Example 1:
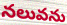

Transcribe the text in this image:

నలువను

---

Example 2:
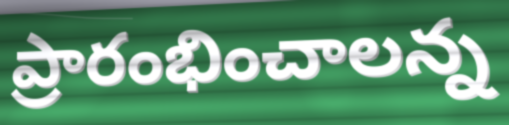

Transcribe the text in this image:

ప్రారంభించాలన్న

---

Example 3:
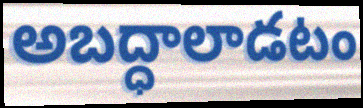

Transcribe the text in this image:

అబద్ధాలాడటం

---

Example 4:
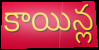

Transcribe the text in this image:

కాయిన్ల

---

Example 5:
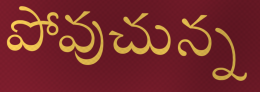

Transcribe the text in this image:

పోవుచున్న